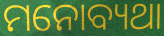
ମନୋବ୍ୟଥା